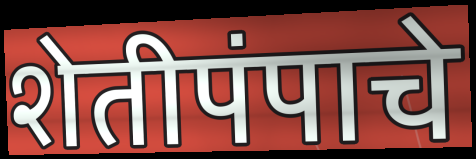
शेतीपंपाचे